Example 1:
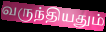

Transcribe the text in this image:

வருந்தியதும்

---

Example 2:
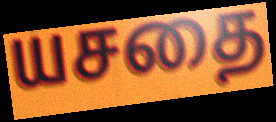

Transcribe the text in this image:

யசதை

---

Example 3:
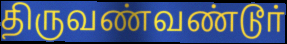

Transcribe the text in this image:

திருவண்வண்டூர்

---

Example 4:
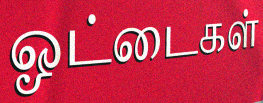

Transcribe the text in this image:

ஓட்டைகள்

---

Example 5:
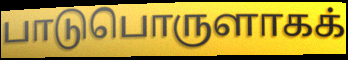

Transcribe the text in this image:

பாடுபொருளாகக்